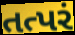
તત્પરં